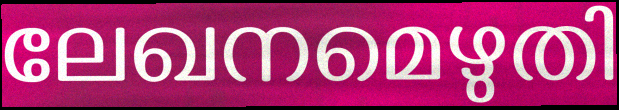
ലേഖനമെഴുതി